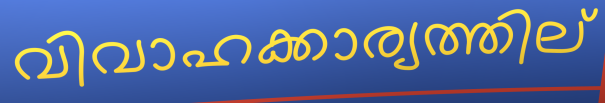
വിവാഹക്കാര്യത്തില്